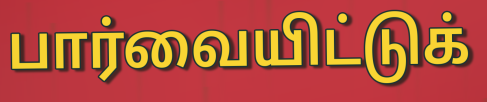
பார்வையிட்டுக்